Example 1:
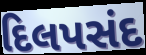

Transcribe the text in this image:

દિલપસંદ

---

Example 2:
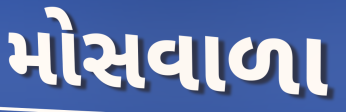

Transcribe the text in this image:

મોસવાળા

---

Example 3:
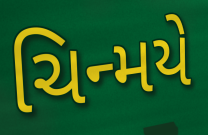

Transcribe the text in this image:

ચિન્મયે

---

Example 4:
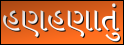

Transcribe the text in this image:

હણહણાતું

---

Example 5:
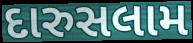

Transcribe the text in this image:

દારુસલામ